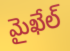
మైఖేల్